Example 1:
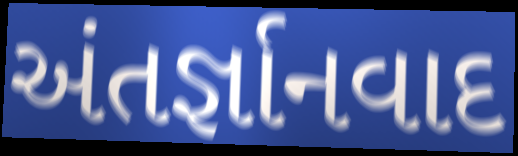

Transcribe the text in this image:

અંતર્જ્ઞાનવાદ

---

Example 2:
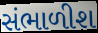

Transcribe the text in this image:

સંભાળીશ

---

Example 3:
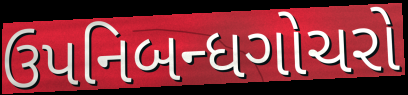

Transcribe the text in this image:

ઉપનિબન્ધગોચરો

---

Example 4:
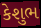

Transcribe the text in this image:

કેશુભ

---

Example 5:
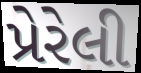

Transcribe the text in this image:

પ્રેરેલી